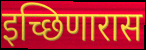
इच्छिणारास